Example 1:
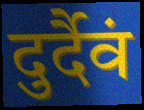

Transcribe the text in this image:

दुर्दैवं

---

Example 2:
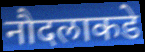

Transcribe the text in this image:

नौदलाकडे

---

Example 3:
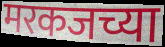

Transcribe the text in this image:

मरकजच्या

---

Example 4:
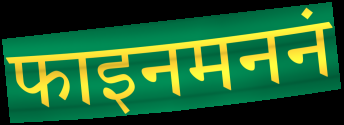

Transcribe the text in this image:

फाइनमननं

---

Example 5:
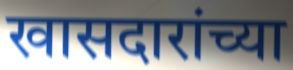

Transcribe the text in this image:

खासदारांच्या